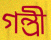
গন্ত্রী